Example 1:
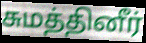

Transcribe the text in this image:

சுமத்தினீர்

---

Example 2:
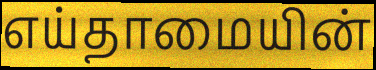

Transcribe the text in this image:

எய்தாமையின்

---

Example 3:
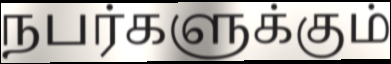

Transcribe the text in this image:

நபர்களுக்கும்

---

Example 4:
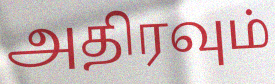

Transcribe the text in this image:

அதிரவும்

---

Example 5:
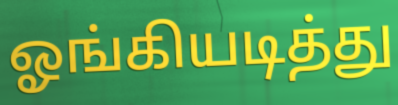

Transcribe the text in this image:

ஓங்கியடித்து